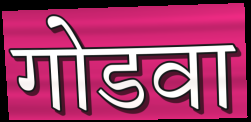
गोडवा